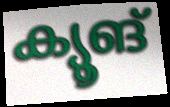
ക്യൂങ്